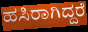
ಹಸಿರಾಗಿದ್ದರೆ